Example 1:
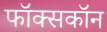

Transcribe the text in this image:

फॉक्सकॉन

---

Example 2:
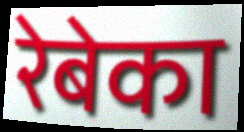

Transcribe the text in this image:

रेबेका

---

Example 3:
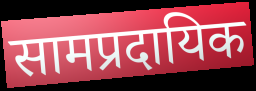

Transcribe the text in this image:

सामप्रदायिक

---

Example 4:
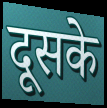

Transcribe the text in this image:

दूसके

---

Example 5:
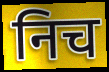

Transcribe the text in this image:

निच